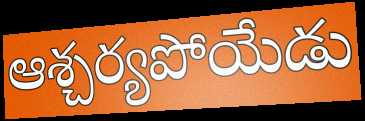
ఆశ్చర్యపోయేడు